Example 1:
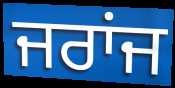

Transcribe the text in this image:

ਜਰਾਂਜ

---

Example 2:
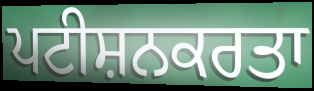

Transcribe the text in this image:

ਪਟੀਸ਼ਨਕਰਤਾ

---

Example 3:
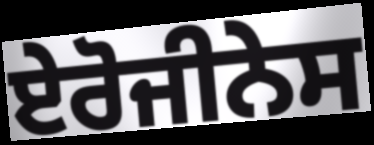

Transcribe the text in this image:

ਏਰੋਜੀਨੇਸ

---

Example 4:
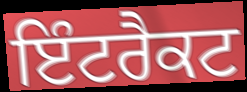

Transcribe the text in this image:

ਇੰਟਰੈਕਟ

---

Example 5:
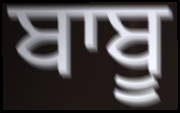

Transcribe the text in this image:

ਬਾਬੂ